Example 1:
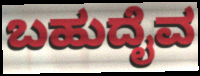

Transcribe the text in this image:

ಬಹುದೈವ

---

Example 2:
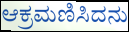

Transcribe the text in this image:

ಆಕ್ರಮಣಿಸಿದನು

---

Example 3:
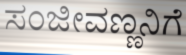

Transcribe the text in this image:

ಸಂಜೀವಣ್ಣನಿಗೆ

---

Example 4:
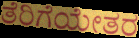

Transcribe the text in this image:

ತೆರಿಗೆಯೇತರ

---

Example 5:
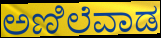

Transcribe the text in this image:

ಅಣಿಲೆವಾಡ